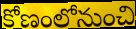
కోణంలోనుంచి